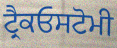
ਟ੍ਰੈਕਓਸਟੋਮੀ